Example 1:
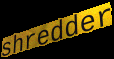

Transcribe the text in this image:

shredder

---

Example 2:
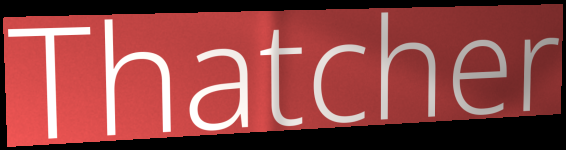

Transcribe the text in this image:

Thatcher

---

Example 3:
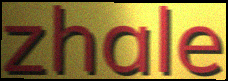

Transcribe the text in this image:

zhale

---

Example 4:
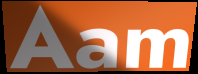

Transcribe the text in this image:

Aam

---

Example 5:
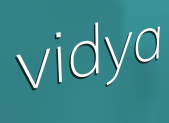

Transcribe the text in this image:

vidya